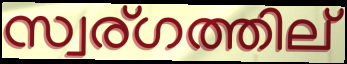
സ്വര്ഗത്തില്